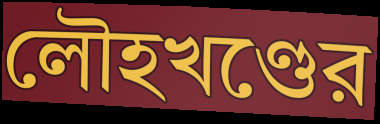
লৌহখণ্ডের